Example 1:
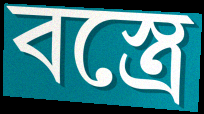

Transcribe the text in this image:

বস্ত্রে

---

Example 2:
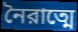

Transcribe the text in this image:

নৈরাত্মে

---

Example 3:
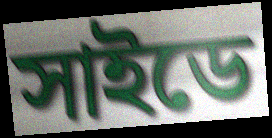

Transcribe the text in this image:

সাইডে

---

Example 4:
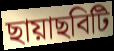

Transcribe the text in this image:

ছায়াছবিটি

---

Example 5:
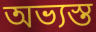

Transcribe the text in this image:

অভ্যস্ত